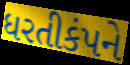
ધરતીકંપને